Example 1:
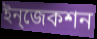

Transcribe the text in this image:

ইন্‌জেকশন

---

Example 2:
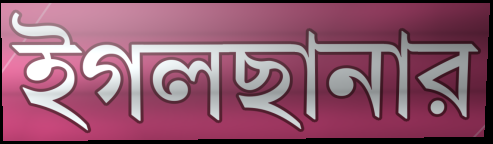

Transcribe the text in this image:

ইগলছানার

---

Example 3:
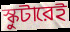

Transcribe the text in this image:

স্কুটারেই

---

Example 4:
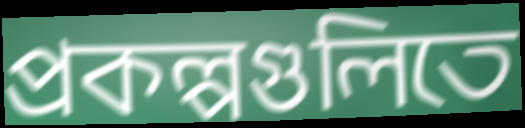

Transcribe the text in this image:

প্রকল্পগুলিতে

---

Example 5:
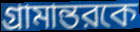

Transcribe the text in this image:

গ্রামান্তরকে